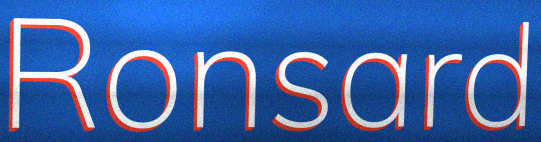
Ronsard